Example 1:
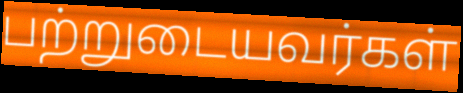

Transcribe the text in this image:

பற்றுடையவர்கள்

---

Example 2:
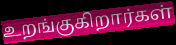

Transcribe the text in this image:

உறங்குகிறார்கள்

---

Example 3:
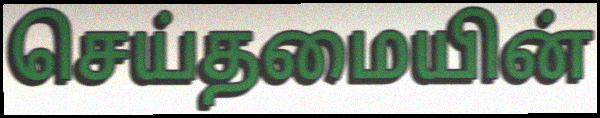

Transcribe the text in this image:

செய்தமையின்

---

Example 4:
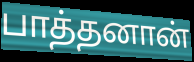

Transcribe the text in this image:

பாத்தனான்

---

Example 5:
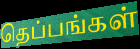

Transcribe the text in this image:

தெப்பங்கள்